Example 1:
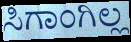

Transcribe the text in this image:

ಸಿಗಾಂಗಿಲ್ಲ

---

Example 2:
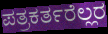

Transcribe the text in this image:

ಪತ್ರಕರ್ತರೆಲ್ಲರ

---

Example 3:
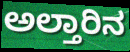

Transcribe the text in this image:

ಅಲ್ತಾರಿನ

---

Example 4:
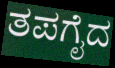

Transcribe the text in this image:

ತಪಗೈದ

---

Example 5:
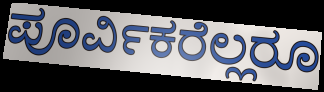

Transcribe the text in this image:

ಪೂರ್ವಿಕರೆಲ್ಲರೂ